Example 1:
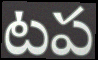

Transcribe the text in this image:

టప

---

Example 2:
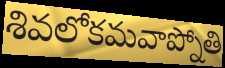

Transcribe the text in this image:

శివలోకమవాప్నోతి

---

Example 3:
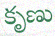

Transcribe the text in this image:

కృణు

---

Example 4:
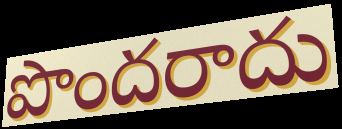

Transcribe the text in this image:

పొందరాదు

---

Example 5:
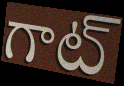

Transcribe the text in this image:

గాట్